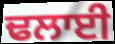
ਢਲਾਈ